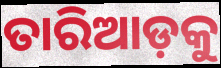
ତାରିଆଡ଼କୁ